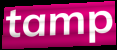
tamp